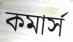
কমার্স